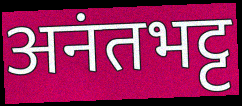
अनंतभट्ट